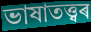
ভাষাতত্ত্বৰ